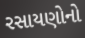
રસાયણોનો